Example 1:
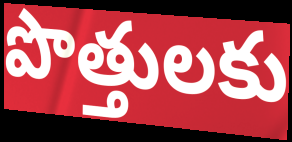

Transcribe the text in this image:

పొత్తులకు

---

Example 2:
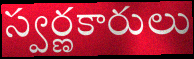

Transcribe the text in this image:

స్వర్ణకారులు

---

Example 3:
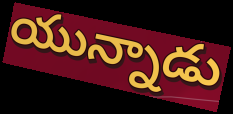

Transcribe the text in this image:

యున్నాడు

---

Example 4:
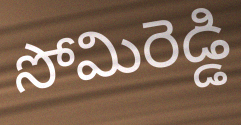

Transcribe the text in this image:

సోమిరెడ్డి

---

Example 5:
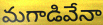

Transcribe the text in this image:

మగాడివేనా